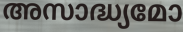
അസാദ്ധ്യമോ